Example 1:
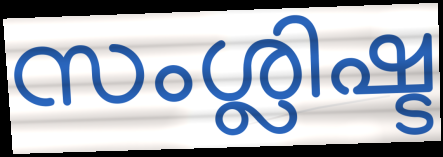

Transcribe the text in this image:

സംശ്ലിഷ്ട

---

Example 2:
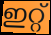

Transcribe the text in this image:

ഇറ്റ്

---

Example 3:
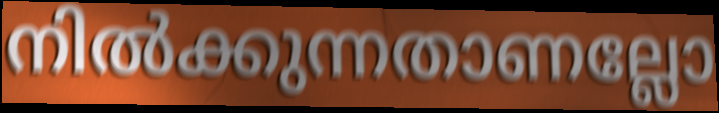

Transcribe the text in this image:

നിൽക്കുന്നതാണല്ലോ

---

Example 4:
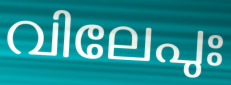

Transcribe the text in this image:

വിലേപുഃ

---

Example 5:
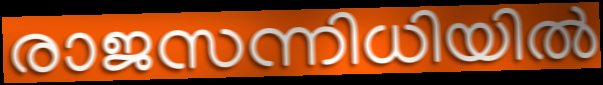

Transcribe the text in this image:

രാജസന്നിധിയിൽ